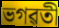
ভগৱতী